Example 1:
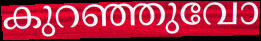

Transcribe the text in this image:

കുറഞ്ഞുവോ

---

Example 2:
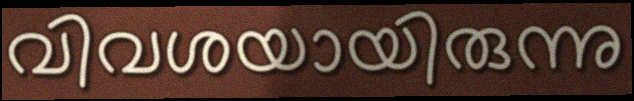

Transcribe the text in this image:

വിവശയായിരുന്നു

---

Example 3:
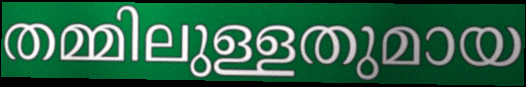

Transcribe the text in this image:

തമ്മിലുള്ളതുമായ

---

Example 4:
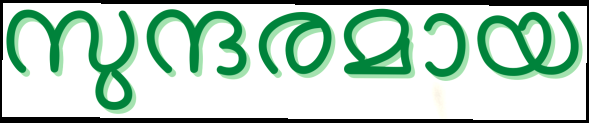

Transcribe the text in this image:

സുന്ദരമായ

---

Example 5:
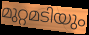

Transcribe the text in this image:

മുറ്റമടിയും